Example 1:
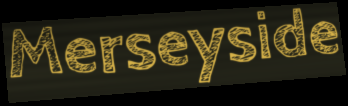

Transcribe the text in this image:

Merseyside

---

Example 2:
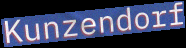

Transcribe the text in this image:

Kunzendorf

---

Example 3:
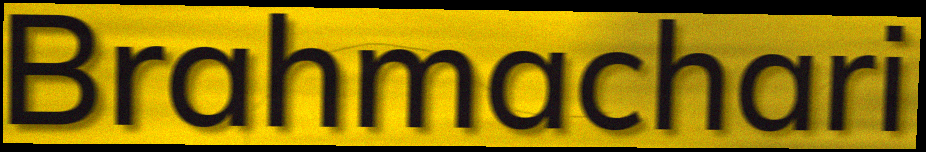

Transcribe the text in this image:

Brahmachari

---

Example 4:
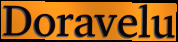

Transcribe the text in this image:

Doravelu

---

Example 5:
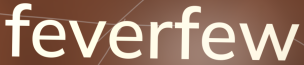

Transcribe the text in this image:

feverfew